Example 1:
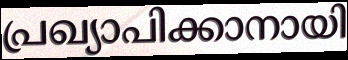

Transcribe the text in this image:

പ്രഖ്യാപിക്കാനായി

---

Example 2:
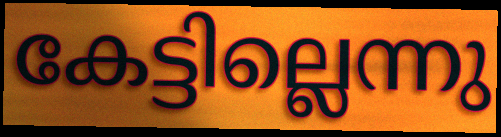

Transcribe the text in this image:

കേട്ടില്ലെന്നു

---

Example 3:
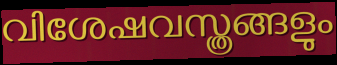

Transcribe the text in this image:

വിശേഷവസ്ത്രങ്ങളും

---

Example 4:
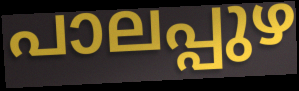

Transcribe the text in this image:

പാലപ്പുഴ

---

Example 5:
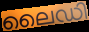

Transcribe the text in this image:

ലൈഡി